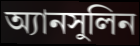
অ্যানসুলিন